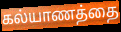
கல்யாணத்தை